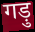
गड़ु